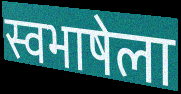
स्वभाषेला